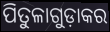
ପିତୁଳାଗୁଡ଼ାକର